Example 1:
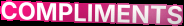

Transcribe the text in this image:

COMPLIMENTS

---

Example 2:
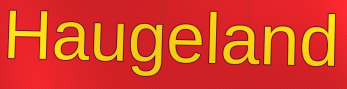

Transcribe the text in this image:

Haugeland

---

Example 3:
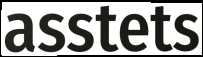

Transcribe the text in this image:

asstets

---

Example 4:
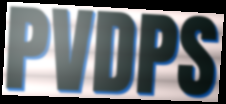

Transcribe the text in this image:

PVDPS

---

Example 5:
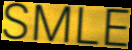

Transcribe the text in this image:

SMLE